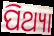
ପିଥ୍ୟା